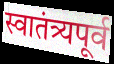
स्वातंत्र्यपूर्व